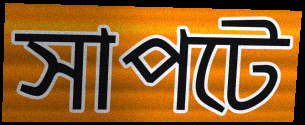
সাপটে